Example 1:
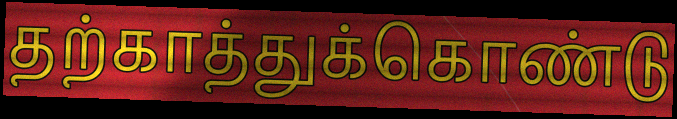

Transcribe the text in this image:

தற்காத்துக்கொண்டு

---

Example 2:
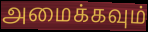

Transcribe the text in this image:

அமைக்கவும்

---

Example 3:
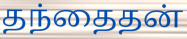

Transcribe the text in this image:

தந்தைதன்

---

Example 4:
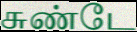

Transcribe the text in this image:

சுண்டே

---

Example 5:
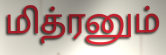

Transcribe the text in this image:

மித்ரனும்